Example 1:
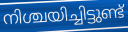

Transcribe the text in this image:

നിശ്ചയിച്ചിട്ടുണ്ട്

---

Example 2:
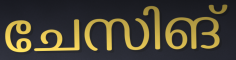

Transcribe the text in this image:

ചേസിങ്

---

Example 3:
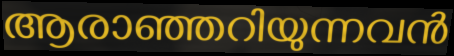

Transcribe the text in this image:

ആരാഞ്ഞറിയുന്നവൻ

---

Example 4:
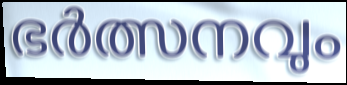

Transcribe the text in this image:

ഭർത്സനവും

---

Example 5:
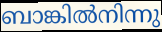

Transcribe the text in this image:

ബാങ്കിൽനിന്നു